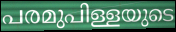
പരമുപിള്ളയുടെ